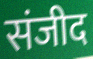
संजीद